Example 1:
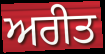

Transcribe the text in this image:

ਅਰੀਤ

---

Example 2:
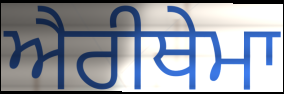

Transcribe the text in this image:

ਐਰੀਥੇਮਾ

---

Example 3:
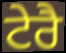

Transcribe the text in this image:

ਟੇਰੈ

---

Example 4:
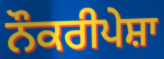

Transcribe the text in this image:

ਨੌਕਰੀਪੇਸ਼ਾ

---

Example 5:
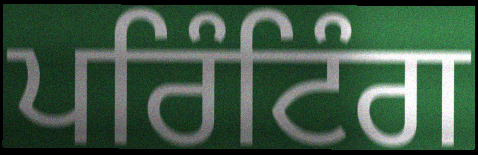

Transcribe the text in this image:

ਪਰਿੰਟਿੰਗ